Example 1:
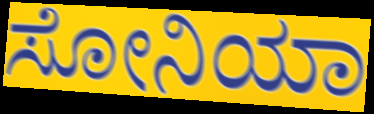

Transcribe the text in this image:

ಸೋನಿಯಾ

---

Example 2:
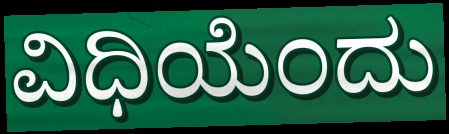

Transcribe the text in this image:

ವಿಧಿಯೆಂದು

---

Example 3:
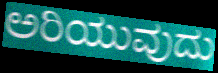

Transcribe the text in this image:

ಅರಿಯುವುದು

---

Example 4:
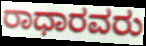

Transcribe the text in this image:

ರಾಧಾರವರು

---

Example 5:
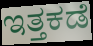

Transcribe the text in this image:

ಇತ್ತಕಡೆ